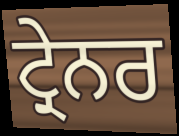
ਟ੍ਰੇਨਰ